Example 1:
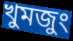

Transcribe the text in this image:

খুমজুং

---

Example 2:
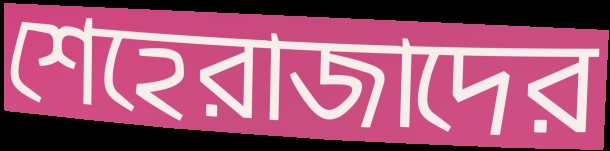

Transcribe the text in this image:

শেহেরাজাদের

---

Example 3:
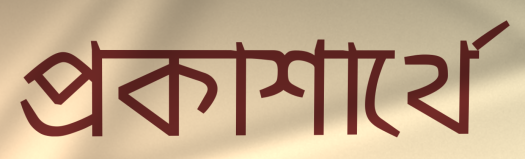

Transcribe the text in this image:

প্রকাশার্থে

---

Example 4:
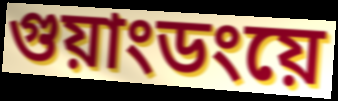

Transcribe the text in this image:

গুয়াংডংয়ে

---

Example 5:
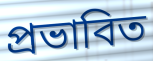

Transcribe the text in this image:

প্রভাবিত